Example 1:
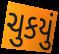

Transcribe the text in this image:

ચુકયું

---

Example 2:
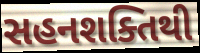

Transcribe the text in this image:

સહનશક્તિથી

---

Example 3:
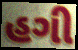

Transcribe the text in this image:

હગી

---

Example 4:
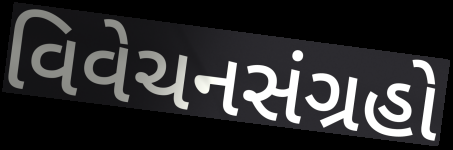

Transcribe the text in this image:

વિવેચનસંગ્રહો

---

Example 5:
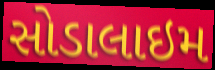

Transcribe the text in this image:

સોડાલાઇમ